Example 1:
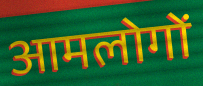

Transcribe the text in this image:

आमलोगों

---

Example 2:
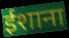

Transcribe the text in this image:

ईशाना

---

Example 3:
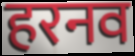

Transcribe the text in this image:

हरनव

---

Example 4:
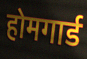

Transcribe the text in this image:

होमगार्ड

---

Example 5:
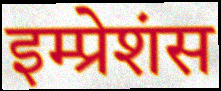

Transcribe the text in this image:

इम्प्रेशंस